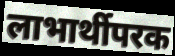
लाभार्थीपरक